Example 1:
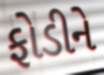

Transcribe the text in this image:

ફોડીને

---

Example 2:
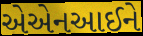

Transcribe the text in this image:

એએનઆઈને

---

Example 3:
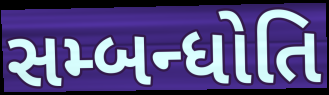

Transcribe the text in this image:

સમ્બન્ધોતિ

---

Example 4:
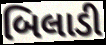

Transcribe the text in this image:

બિલાડી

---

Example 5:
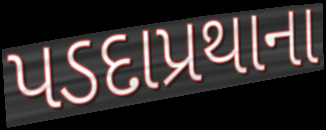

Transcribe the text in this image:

પડદાપ્રથાના